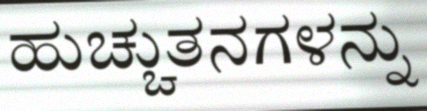
ಹುಚ್ಚುತನಗಳನ್ನು